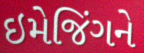
ઇમેજિંગને